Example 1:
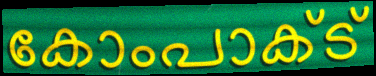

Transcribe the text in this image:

കോംപാക്ട്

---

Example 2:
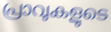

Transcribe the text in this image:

പ്രാവുകളുടെ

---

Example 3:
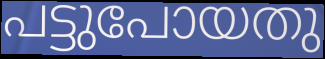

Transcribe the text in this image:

പട്ടുപോയതു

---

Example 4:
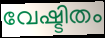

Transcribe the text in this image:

വേഷ്ടിതം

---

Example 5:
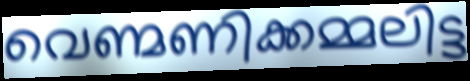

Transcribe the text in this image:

വെണ്മണിക്കമ്മലിട്ട